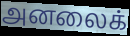
அனலைக்